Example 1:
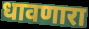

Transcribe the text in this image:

धावणारा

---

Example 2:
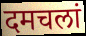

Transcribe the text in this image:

दमचलां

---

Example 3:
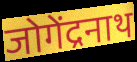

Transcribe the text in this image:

जोगेंद्रनाथ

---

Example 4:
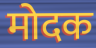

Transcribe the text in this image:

मोदक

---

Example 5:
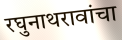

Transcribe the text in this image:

रघुनाथरावांचा